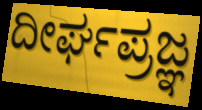
ದೀರ್ಘಪ್ರಜ್ಞ